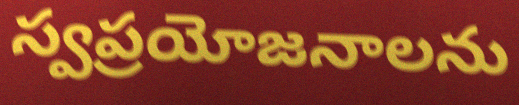
స్వప్రయోజనాలను